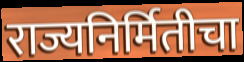
राज्यनिर्मितीचा